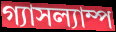
গ্যাসল্যাম্প